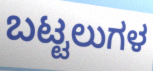
ಬಟ್ಟಲುಗಳ